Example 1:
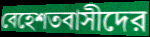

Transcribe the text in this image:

বেহেশতবাসীদের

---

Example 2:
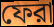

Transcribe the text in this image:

ফেরা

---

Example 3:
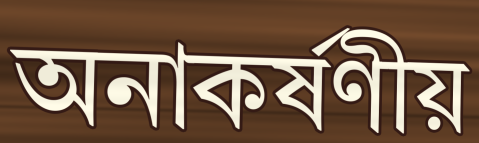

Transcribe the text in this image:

অনাকর্ষণীয়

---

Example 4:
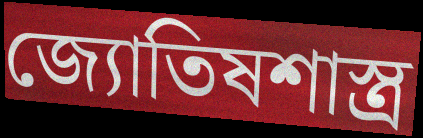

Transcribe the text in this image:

জ্যোতিষশাস্ত্র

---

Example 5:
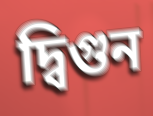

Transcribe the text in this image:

দ্বিগুন